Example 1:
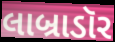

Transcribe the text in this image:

લાબ્રાડૉર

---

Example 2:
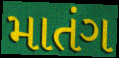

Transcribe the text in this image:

માતંગ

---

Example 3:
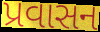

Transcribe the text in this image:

પ્રવાસન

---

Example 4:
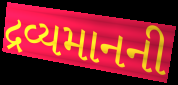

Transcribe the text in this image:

દ્રવ્યમાનની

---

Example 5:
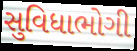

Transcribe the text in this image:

સુવિધાભોગી